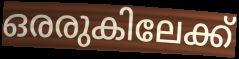
ഒരരുകിലേക്ക്